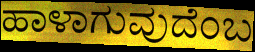
ಹಾಳಾಗುವುದೆಂಬ